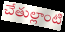
చేతుల్లాంటి